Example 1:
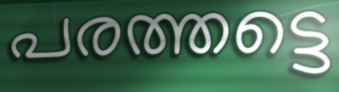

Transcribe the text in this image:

പരത്തട്ടെ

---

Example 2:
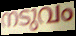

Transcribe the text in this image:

നടുവം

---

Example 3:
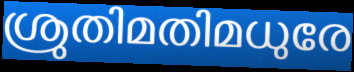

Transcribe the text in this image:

ശ്രുതിമതിമധുരേ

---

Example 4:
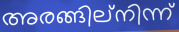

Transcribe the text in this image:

അരങ്ങില്നിന്ന്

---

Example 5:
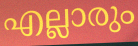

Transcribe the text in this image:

എല്ലാരും